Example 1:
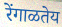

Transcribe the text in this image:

रेंगाळतेय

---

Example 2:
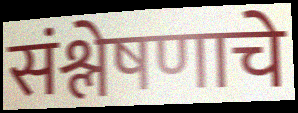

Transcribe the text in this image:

संश्लेषणाचे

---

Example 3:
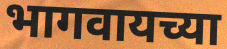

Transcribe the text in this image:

भागवायच्या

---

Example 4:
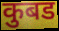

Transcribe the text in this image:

कुबड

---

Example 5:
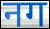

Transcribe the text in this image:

नग